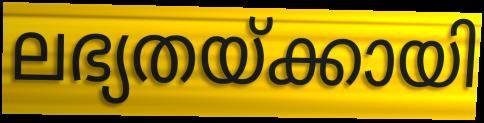
ലഭ്യതയ്ക്കായി